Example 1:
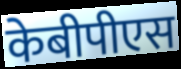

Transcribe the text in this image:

केबीपीएस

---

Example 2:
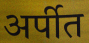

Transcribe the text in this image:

अर्पीत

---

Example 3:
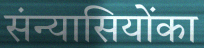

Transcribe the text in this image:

संन्यासियोंका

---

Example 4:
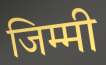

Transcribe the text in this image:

जिम्मी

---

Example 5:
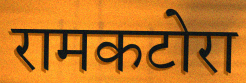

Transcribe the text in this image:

रामकटोरा